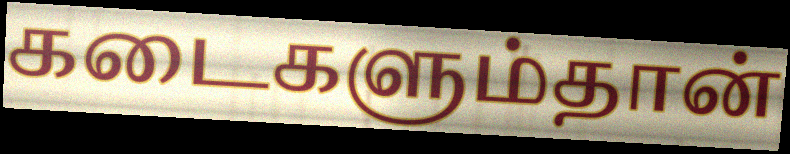
கடைகளும்தான்